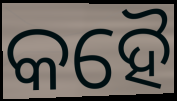
କହୈ